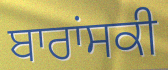
ਬਾਰਾਂਸਕੀ